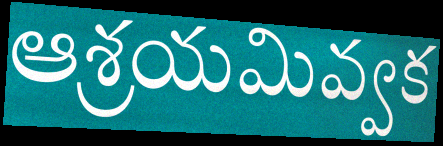
ఆశ్రయమివ్వక